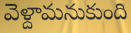
వెళ్దామనుకుంది